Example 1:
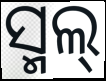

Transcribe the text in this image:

ସ୍ମଲ୍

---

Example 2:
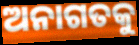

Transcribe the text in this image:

ଅନାଗତକୁ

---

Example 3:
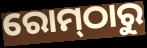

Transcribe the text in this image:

ରୋମ୍‌ଠାରୁ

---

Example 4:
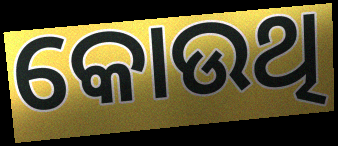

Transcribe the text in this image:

କୋଉଥି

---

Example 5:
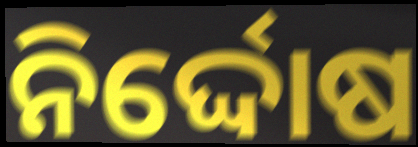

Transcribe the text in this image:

ନିର୍ଦ୍ଦୋଷ